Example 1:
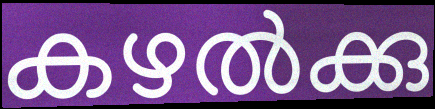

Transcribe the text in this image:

കഴൽക്കു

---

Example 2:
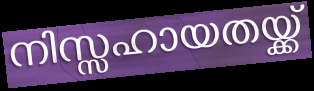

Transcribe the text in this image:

നിസ്സഹായതയ്ക്ക്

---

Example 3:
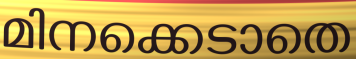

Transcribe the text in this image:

മിനക്കെടാതെ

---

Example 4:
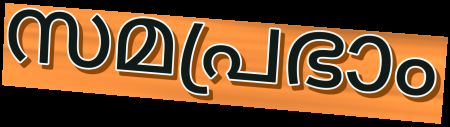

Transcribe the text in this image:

സമപ്രഭാം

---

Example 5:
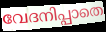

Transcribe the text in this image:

വേദനിപ്പാതെ